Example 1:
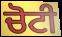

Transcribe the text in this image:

ਚੋਟੀ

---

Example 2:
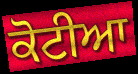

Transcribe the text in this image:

ਕੋਟੀਆ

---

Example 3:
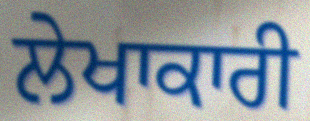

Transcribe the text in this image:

ਲੇਖਾਕਾਰੀ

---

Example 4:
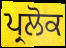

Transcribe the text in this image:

ਪ੍ਰਲੋਕ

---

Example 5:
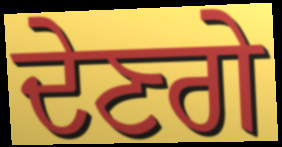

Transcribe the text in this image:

ਦੇਣਗੇ